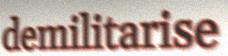
demilitarise